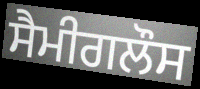
ਸੈਮੀਗਲੌਸ